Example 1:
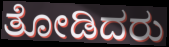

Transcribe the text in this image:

ತೋಡಿದರು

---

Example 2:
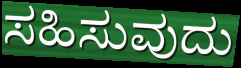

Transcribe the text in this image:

ಸಹಿಸುವುದು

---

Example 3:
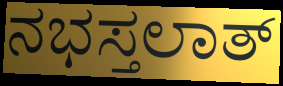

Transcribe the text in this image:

ನಭಸ್ತಲಾತ್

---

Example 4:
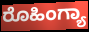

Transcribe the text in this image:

ರೊಹಿಂಗ್ಯಾ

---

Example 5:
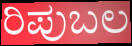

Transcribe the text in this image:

ರಿಪುಬಲ